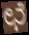
ಛೆ